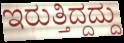
ಇರುತ್ತಿದ್ದದ್ದು